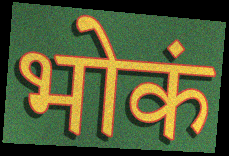
भोकं